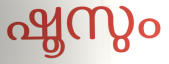
ഷൂസും